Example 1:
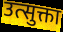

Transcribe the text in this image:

उत्सुक्ता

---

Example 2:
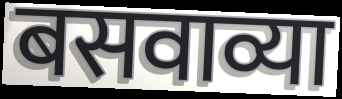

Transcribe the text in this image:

बसवाव्या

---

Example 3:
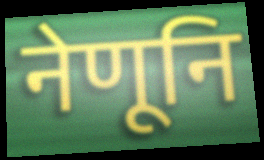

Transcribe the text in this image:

नेणूनि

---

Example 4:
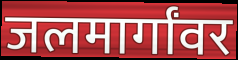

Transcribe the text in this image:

जलमार्गांवर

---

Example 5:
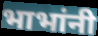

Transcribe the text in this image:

भाभांनी